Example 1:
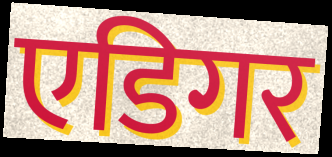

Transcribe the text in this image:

एडिगर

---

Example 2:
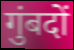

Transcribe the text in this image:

गुंबदों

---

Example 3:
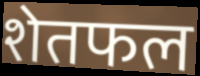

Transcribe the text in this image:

शेतफल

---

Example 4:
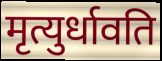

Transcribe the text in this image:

मृत्युर्धावति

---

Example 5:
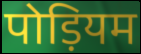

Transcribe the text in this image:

पोड़ियम